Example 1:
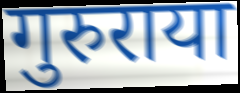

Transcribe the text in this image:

गुरुराया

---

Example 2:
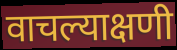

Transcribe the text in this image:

वाचल्याक्षणी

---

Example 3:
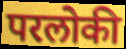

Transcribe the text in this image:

परलोकी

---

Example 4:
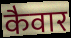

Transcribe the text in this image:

कैवार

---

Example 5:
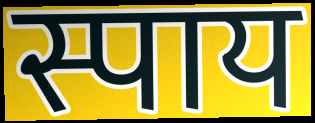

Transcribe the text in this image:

स्पाय